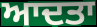
ਆਦਤਾ